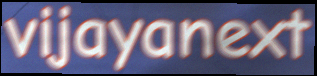
vijayanext